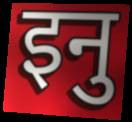
इनु